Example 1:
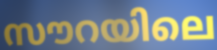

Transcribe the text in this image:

സൗറയിലെ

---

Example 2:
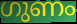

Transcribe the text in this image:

ഗുണം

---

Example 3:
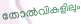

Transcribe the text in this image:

തോൽവികളിലും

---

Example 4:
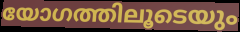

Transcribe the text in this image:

യോഗത്തിലൂടെയും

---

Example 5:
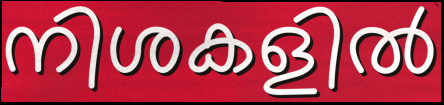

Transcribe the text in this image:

നിശകളിൽ